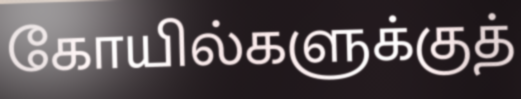
கோயில்களுக்குத்